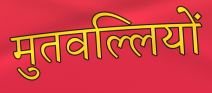
मुतवल्लियों